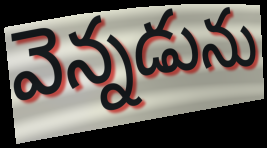
వెన్నడును